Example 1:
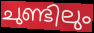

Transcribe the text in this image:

ചുണ്ടിലും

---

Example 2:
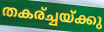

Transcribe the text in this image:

തകര്ച്ചയ്ക്കു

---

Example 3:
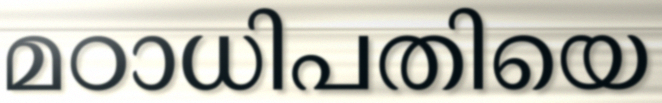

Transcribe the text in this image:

മഠാധിപതിയെ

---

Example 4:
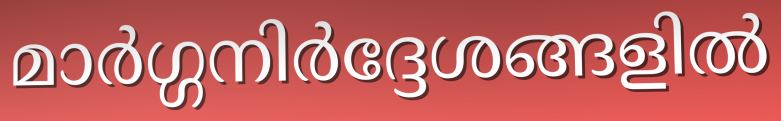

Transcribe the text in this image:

മാർഗ്ഗനിർദ്ദേശങ്ങളിൽ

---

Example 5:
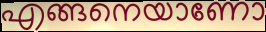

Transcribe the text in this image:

എങ്ങനെയാണോ